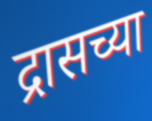
द्रासच्या